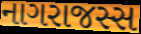
નાગરાજસ્સ